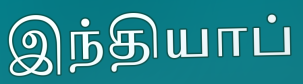
இந்தியாப்